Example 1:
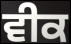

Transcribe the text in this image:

ਵੀਕ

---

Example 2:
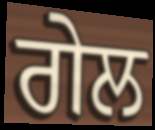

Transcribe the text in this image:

ਗੇਲ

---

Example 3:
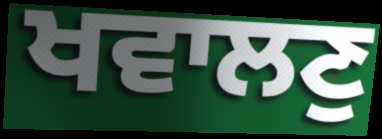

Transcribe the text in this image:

ਖਵਾਲਣੁ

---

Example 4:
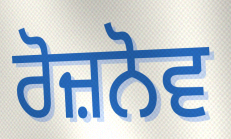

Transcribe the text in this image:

ਰੋਜ਼ਨੋਵ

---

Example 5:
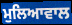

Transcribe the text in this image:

ਮੁਲਿਆਵਾਲ